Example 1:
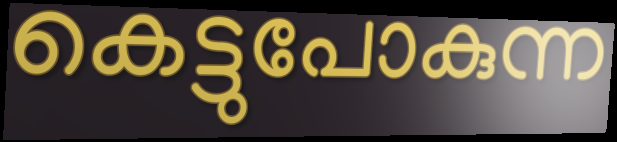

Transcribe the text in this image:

കെട്ടുപോകുന്ന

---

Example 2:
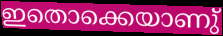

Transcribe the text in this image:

ഇതൊക്കെയാണു്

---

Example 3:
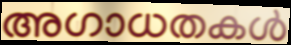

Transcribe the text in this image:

അഗാധതകൾ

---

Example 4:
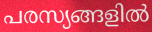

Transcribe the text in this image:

പരസ്യങ്ങളിൽ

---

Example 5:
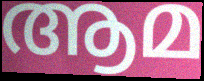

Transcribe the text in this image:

ആമ